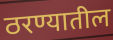
ठरण्यातील